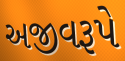
અજીવરૂપે